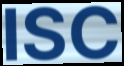
ISC